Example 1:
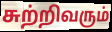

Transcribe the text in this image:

சுற்றிவரும்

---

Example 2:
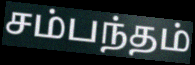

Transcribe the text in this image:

சம்பந்தம்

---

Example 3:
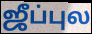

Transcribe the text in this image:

ஜீப்புல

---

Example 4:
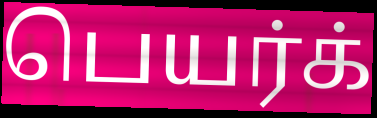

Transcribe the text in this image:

பெயர்க்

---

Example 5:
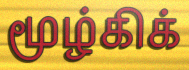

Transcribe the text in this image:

மூழ்கிக்